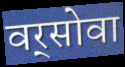
वर्सोवा